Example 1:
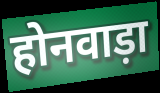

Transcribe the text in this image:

होनवाड़ा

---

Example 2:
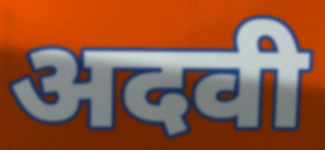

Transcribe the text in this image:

अदवी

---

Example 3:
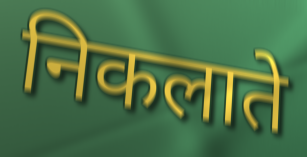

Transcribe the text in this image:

निकलाते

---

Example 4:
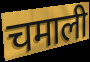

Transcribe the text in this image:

चमाली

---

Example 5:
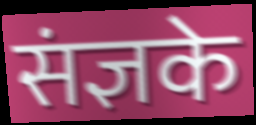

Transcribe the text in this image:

संज्ञके